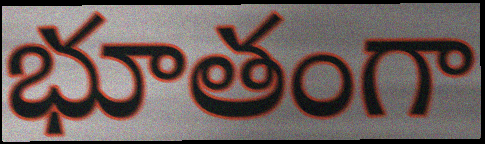
భూతంగా